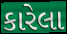
કારેલા